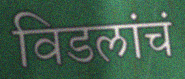
विडलांचं